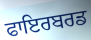
ਫਾਇਰਬਰਡ